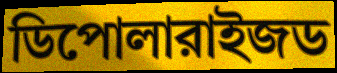
ডিপোলারাইজড